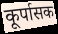
कूर्पासक